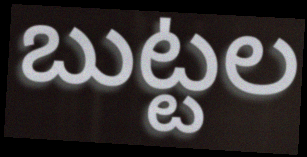
బుట్టల